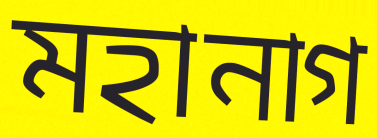
মহানাগ